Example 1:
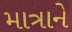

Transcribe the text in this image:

માત્રાને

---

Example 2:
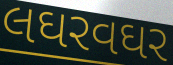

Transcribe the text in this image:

લઘરવઘર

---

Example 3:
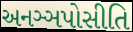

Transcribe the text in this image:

અનઞ્ઞપોસીતિ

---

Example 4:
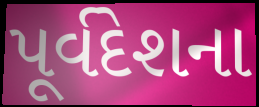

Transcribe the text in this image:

પૂર્વદેશના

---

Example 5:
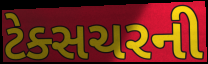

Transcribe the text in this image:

ટેક્સચરની